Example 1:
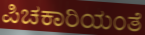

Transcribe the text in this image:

ಪಿಚಕಾರಿಯಂತೆ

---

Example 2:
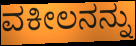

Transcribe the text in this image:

ವಕೀಲನನ್ನು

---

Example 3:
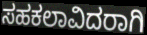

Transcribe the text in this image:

ಸಹಕಲಾವಿದರಾಗಿ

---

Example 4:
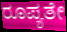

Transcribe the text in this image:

ರೂಪ್ಯತೇ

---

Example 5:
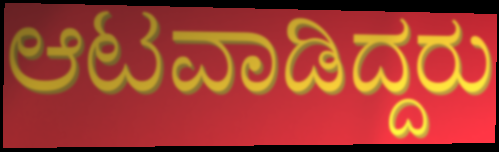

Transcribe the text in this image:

ಆಟವಾಡಿದ್ದರು